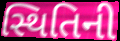
સ્થિતિની